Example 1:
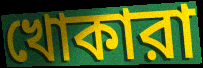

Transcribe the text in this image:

খোকারা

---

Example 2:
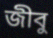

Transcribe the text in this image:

জীবু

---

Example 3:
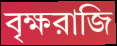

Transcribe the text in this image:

বৃক্ষরাজি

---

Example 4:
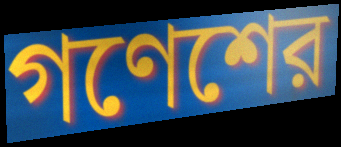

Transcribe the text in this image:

গণেশের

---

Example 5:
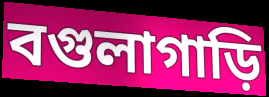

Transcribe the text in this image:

বগুলাগাড়ি